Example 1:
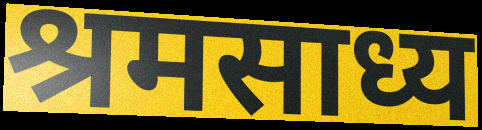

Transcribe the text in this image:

श्रमसाध्य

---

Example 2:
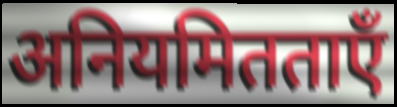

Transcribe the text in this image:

अनियमितताएँ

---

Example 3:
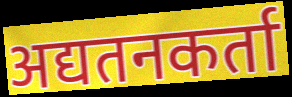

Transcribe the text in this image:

अद्यतनकर्ता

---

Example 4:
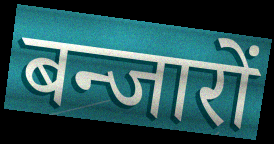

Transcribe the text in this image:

बन्जारों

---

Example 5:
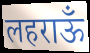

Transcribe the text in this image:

लहराऊँ